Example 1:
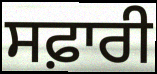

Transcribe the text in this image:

ਸਫ਼ਾਰੀ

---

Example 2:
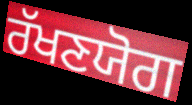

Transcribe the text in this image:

ਰੱਖਣਯੋਗ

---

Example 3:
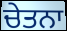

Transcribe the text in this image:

ਚੇਤਨਾ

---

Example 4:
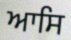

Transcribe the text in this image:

ਆਸਿ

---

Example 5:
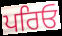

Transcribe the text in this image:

ਪਰਿਓ